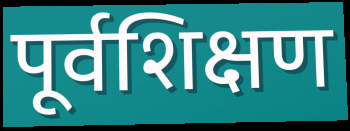
पूर्वशिक्षण